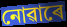
নোৱাৰে